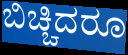
ಬಿಚ್ಚಿದರೂ